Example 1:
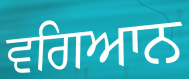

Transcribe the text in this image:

ਵਗਿਆਨ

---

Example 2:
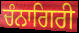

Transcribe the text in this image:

ਚੰਨਾਗਿਰੀ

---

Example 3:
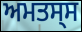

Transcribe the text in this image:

ਅਮਤਸ੍ਸ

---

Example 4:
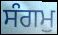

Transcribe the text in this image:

ਸੰਗਮੁ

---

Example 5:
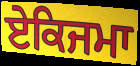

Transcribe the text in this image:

ਏਕਿਜਮਾ